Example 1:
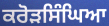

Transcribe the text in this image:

ਕਰੋੜਸਿੰਘਿਆ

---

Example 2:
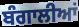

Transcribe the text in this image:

ਬੰਗਾਲੀਆਂ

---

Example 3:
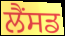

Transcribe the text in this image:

ਲੈਂਸਡ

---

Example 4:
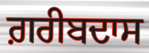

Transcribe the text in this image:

ਗ਼ਰੀਬਦਾਸ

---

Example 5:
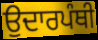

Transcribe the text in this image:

ਉਦਾਰਪੰਥੀ